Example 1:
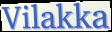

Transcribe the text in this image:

Vilakka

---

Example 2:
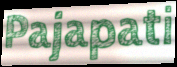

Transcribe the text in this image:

Pajapati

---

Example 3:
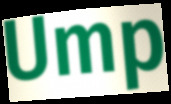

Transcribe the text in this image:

Ump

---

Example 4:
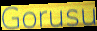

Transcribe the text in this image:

Gorusu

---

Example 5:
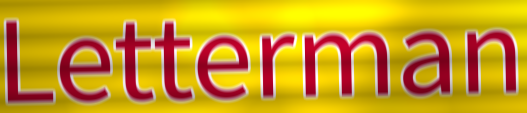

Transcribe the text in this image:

Letterman